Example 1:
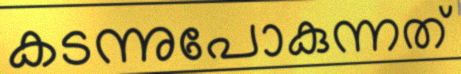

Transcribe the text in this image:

കടന്നുപോകുന്നത്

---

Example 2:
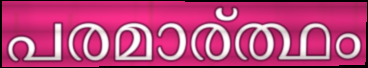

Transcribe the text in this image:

പരമാര്ത്ഥം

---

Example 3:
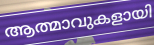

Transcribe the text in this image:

ആത്മാവുകളായി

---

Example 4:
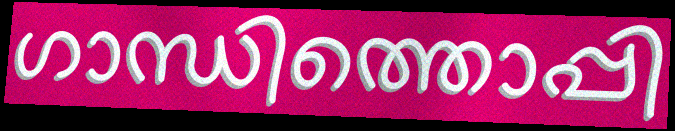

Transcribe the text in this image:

ഗാന്ധിത്തൊപ്പി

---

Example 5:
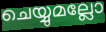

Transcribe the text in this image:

ചെയ്യുമല്ലോ